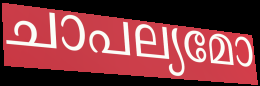
ചാപല്യമോ